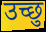
उच्छु